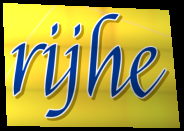
rijhe